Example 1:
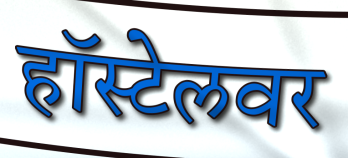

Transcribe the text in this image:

हॉस्टेलवर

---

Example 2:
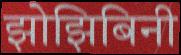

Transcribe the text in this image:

झोझिबिनी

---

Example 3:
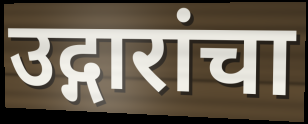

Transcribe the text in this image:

उद्गारांचा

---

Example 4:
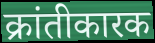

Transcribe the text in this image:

क्रांतीकारक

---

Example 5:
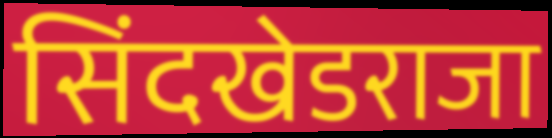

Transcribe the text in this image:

सिंदखेडराजा